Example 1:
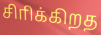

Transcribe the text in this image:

சிரிக்கிறத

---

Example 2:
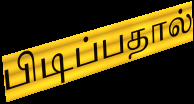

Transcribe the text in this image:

பிடிப்பதால்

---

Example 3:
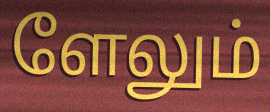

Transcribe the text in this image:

ளேலும்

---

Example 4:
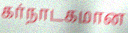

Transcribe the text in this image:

கர்நாடகமான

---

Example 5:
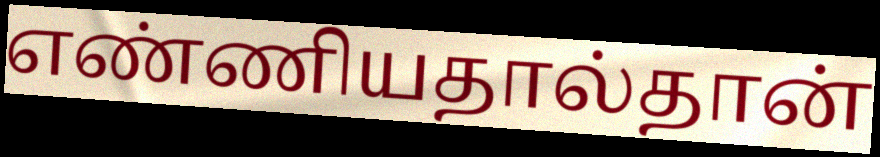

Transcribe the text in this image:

எண்ணியதால்தான்